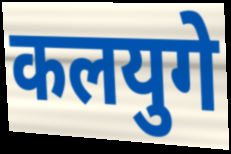
कलयुगे